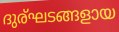
ദുര്ഘടങ്ങളായ